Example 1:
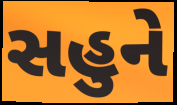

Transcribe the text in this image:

સહુને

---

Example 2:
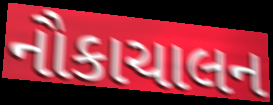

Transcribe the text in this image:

નૌકાચાલન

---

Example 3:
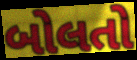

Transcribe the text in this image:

બોલતો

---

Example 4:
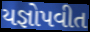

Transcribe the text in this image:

યજ્ઞોપવીત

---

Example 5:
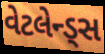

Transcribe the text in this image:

વેટલેન્ડ્સ